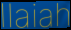
Ilaiah